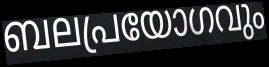
ബലപ്രയോഗവും